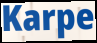
Karpe